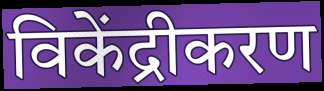
विकेंद्रीकरण